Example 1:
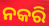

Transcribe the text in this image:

ନକରି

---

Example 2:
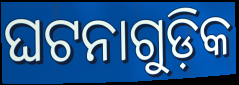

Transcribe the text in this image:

ଘଟନାଗୁଡ଼ିକ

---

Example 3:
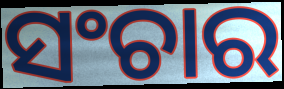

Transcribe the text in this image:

ସଂଚାର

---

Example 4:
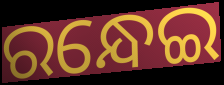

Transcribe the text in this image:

ରନ୍ଧେଇ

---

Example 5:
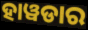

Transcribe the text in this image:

ହାୱଡାର